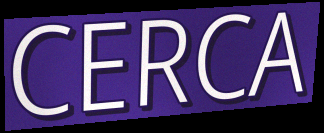
CERCA